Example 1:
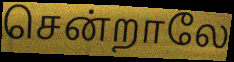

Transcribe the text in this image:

சென்றாலே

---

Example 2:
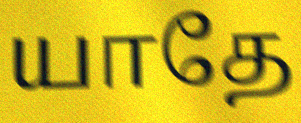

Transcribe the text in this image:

யாதே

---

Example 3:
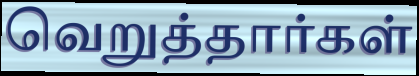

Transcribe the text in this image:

வெறுத்தார்கள்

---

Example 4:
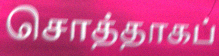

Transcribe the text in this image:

சொத்தாகப்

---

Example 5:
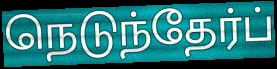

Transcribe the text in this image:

நெடுந்தேர்ப்